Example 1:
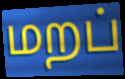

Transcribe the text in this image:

மறப்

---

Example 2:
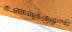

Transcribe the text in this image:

உணவுக்குழாய்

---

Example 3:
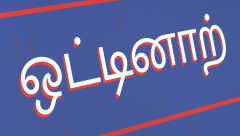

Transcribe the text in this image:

ஒட்டினாற்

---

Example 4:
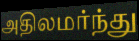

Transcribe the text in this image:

அதிலமர்ந்து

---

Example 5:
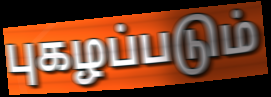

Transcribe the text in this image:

புகழப்படும்